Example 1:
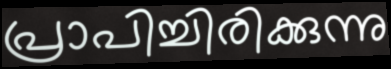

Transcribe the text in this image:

പ്രാപിച്ചിരിക്കുന്നു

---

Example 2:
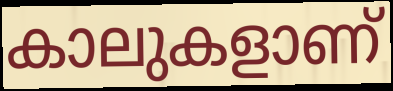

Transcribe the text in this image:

കാലുകളാണ്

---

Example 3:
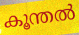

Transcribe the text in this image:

കൂന്തൽ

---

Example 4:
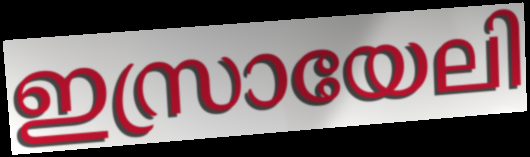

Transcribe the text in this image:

ഇസ്രായേലി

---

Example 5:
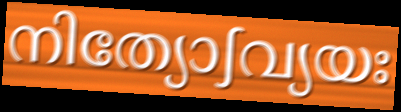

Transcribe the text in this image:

നിത്യോഽവ്യയഃ